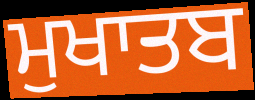
ਮੁਖਾਤਬ